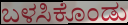
ಬಳಸಿಕೊಂಡು